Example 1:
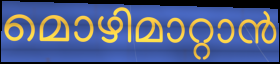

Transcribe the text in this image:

മൊഴിമാറ്റാൻ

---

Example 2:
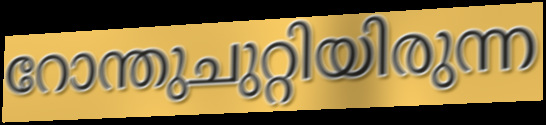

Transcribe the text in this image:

റോന്തുചുറ്റിയിരുന്ന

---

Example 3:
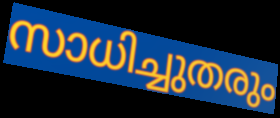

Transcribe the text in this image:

സാധിച്ചുതരും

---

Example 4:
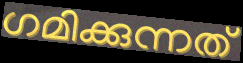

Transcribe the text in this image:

ഗമിക്കുന്നത്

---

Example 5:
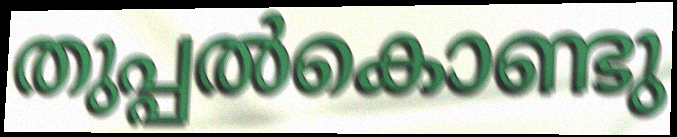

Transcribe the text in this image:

തുപ്പൽകൊണ്ടു